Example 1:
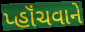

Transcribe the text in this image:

પ્હૉંચવાને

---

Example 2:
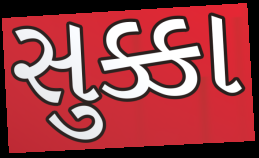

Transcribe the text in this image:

સુક્કા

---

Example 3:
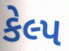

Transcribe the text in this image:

કેલ્પ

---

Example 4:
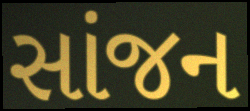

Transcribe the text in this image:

સાંજન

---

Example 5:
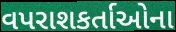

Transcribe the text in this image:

વપરાશકર્તાઓના